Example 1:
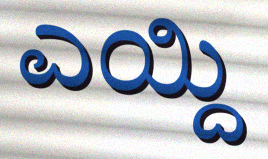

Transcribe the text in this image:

ಎಯ್ದಿ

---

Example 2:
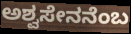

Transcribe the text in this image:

ಅಶ್ವಸೇನನೆಂಬ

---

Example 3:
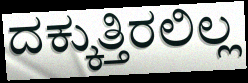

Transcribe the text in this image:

ದಕ್ಕುತ್ತಿರಲಿಲ್ಲ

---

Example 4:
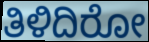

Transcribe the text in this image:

ತಿಳಿದಿರೋ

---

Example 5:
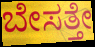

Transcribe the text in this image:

ಬೇಸತ್ತೇ